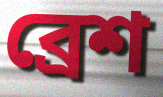
ব্রেশ